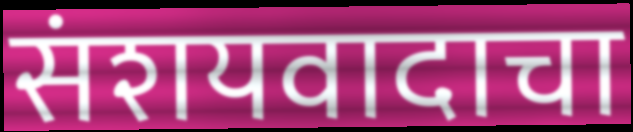
संशयवादाचा